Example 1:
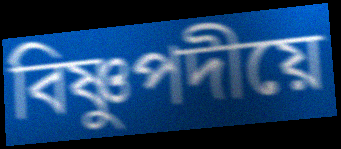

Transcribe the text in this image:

বিষ্ণুপদীয়ে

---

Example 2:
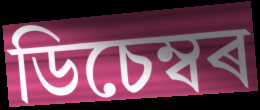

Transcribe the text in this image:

ডিচেম্বৰ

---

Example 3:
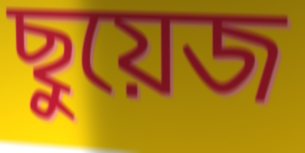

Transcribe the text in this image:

ছুয়েজ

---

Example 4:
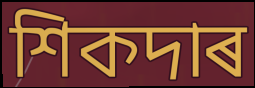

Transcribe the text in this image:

শিকদাৰ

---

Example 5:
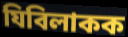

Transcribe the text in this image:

যিবিলাকক